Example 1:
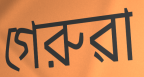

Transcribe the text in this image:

গেৰুৱা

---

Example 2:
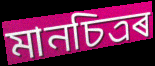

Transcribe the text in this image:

মানচিত্ৰৰ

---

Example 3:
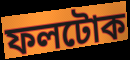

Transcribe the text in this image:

ফলটোক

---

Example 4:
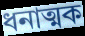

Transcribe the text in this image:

ধনাত্মক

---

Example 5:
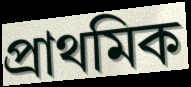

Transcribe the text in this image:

প্ৰাথমিক